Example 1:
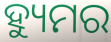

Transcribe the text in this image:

ହ୍ୟୁମର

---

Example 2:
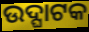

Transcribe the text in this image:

ଉଦ୍ଘାଟକ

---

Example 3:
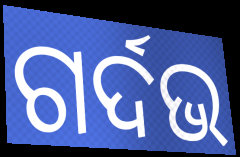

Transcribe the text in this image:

ଗର୍ଦଭ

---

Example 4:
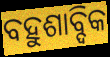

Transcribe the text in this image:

ବହୁଶାବ୍ଦିକ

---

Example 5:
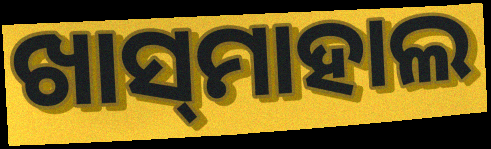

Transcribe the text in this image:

ଖାସ୍‌ମାହାଲ